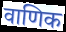
वाणिक